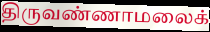
திருவண்ணாமலைக்